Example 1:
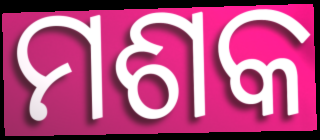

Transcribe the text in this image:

ମଶକ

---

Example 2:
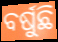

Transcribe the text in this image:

ବର୍ଷୁଛି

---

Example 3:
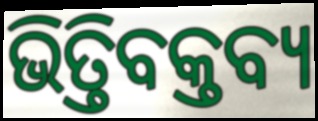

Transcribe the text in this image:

ଭିତ୍ତିବକ୍ତବ୍ୟ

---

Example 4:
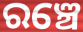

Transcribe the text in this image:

ରଞ୍ଚେ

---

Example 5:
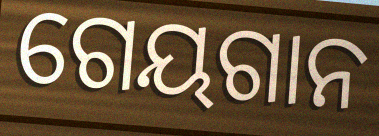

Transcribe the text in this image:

ଗେୟଗାନ